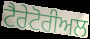
ਟੈਰੇਟੋਰੀਅਲ